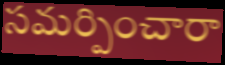
సమర్పించారా